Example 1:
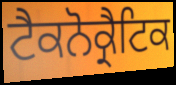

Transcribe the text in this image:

ਟੈਕਨੋਕ੍ਰੈਟਿਕ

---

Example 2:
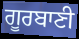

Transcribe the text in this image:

ਗੂਰਬਾਣੀ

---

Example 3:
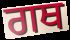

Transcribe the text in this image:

ਗਥ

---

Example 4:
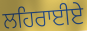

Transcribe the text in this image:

ਲਹਿਰਾਈਏ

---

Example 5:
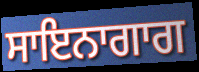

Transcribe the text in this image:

ਸਾਇਨਾਗਾਗ